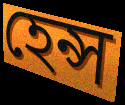
হেন্স